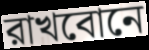
রাখবোনে